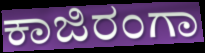
ಕಾಜಿರಂಗಾ